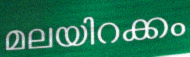
മലയിറക്കം